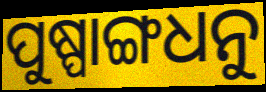
ପୁଷ୍ପାଙ୍ଗଧନୁ